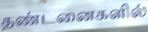
தண்டனைகளில்